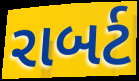
રાબર્ટ